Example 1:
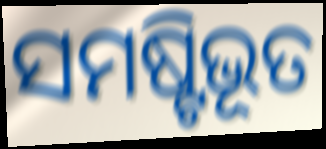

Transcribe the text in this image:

ସମଷ୍ଟିଭୂତ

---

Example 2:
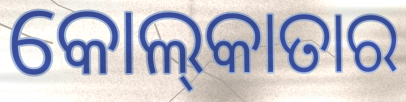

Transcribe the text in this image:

କୋଲ୍‌କାତାର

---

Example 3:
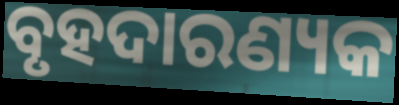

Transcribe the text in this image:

ବୃହଦାରଣ୍ୟକ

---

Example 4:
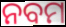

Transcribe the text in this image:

ନବମ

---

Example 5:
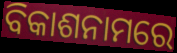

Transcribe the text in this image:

ବିକାଶନାମରେ